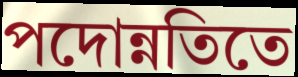
পদোন্নতিতে